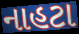
નાહટા